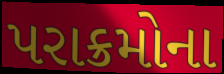
પરાક્રમોના